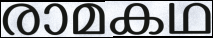
രാമകഥ